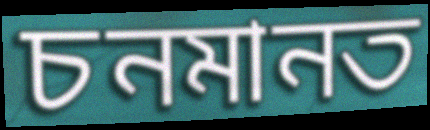
চনমানত